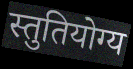
स्तुतियोग्य